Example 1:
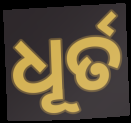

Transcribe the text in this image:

ଧୂର୍ତ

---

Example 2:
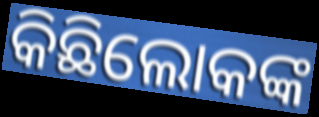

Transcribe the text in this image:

କିଛିଲୋକଙ୍କ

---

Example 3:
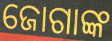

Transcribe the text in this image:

ଜୋଗାଙ୍କ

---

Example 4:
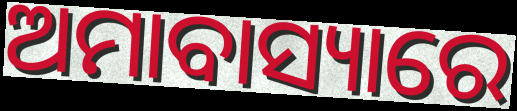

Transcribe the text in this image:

ଅମାବାସ୍ୟାରେ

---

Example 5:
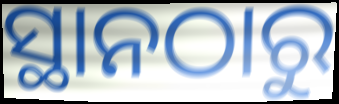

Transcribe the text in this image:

ସ୍ଥାନଠାରୁ